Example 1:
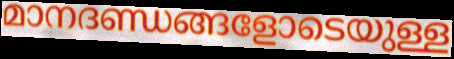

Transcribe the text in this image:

മാനദണ്ഡങ്ങളോടെയുള്ള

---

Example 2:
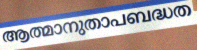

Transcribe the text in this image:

ആത്മാനുതാപബദ്ധത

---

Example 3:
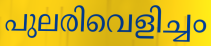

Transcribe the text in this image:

പുലരിവെളിച്ചം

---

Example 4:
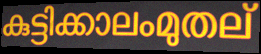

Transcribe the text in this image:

കുട്ടിക്കാലംമുതല്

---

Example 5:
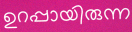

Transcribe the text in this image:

ഉറപ്പായിരുന്ന